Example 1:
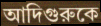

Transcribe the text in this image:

আদিগুরুকে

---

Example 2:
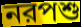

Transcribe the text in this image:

নরপশু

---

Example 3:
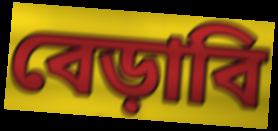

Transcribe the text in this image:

বেড়াবি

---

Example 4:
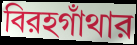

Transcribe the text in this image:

বিরহগাঁথার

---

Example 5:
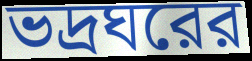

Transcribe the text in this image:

ভদ্রঘরের